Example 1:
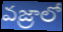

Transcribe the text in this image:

వజ్రాలో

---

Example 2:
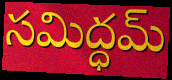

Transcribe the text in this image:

సమిద్ధమ్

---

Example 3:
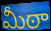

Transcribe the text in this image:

మీఠా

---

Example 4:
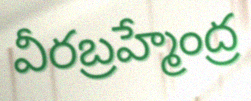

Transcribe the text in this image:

వీరబ్రహ్మేంద్ర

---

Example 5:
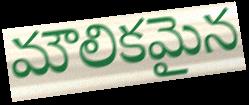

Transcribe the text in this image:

మౌలికమైన